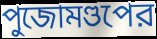
পুজোমণ্ডপের